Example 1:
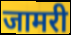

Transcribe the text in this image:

जामरी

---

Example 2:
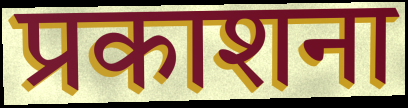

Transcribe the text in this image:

प्रकाशना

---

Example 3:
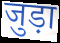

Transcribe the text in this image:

जुड़ा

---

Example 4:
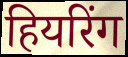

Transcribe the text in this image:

हियरिंग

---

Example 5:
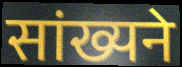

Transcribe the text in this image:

सांख्यने